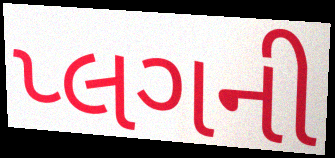
પ્લગની